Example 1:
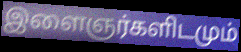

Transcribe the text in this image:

இளைஞர்களிடமும்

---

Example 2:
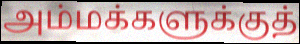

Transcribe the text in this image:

அம்மக்களுக்குத்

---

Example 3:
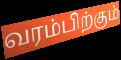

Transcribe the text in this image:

வரம்பிற்கும்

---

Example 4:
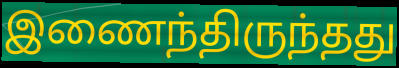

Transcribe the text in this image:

இணைந்திருந்தது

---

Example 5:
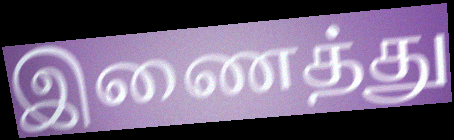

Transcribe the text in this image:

இணைத்து